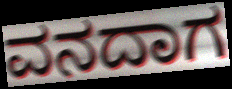
ವನದಾಗ